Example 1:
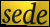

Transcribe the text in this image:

sede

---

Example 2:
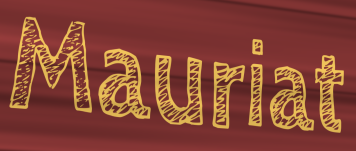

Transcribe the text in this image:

Mauriat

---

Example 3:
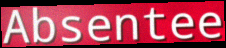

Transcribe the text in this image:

Absentee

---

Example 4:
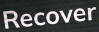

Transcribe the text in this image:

Recover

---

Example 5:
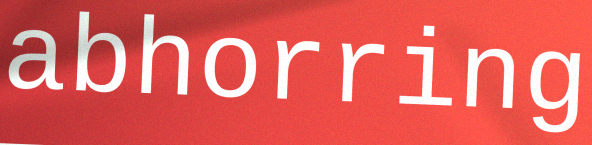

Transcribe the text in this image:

abhorring